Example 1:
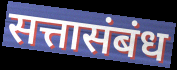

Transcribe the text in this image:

सत्तासंबंध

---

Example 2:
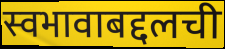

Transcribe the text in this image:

स्वभावाबद्दलची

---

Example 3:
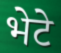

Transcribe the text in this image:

भेटे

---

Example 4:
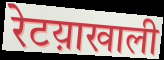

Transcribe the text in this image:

रेटय़ाखाली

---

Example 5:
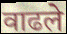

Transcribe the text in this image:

वाढले